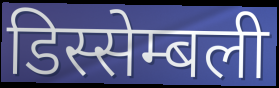
डिस्सेम्बली